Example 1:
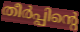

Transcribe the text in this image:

തീർപ്പിന്റെ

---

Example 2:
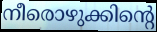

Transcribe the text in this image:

നീരൊഴുക്കിന്റെ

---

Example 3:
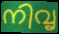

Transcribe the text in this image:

നിവൃ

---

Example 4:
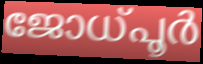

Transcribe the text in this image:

ജോധ്പൂർ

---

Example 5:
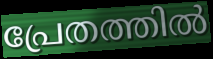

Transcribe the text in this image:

പ്രേതത്തിൽ